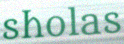
sholas